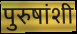
पुरुषांशी